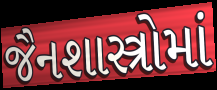
જૈનશાસ્ત્રોમાં